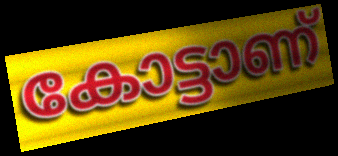
കോട്ടാണ്